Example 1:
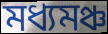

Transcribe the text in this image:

মধ্যমঞ্চ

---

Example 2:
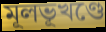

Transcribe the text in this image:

মূলভূখণ্ডে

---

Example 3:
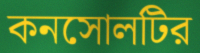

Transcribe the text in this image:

কনসোলটির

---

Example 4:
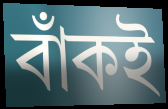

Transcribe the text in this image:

বাঁকই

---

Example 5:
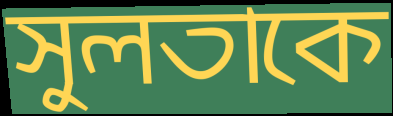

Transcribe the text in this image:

সুলতাকে